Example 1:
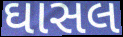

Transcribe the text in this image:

ઘાસલ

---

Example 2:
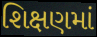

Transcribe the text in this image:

શિક્ષણમાં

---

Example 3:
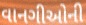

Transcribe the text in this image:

વાનગીઓની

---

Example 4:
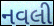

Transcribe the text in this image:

નવલી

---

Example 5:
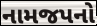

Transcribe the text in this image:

નામજપનો